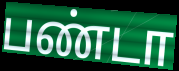
பண்டா